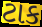
ટાક